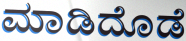
ಮಾಡಿದೊಡೆ